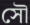
সৌ